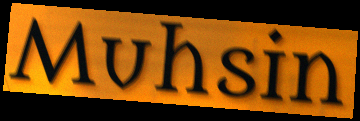
Muhsin